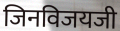
जिनविजयजी